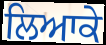
ਲਿਆਕੇ